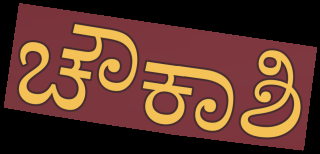
ಚೌಕಾಶಿ